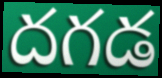
దగడ